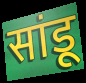
सांडू